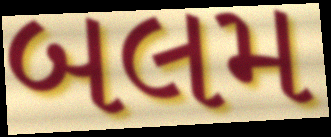
બલમ